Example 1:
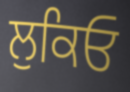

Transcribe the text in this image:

ਲੁਕਿਓ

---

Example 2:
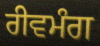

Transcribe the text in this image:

ਰੀਵਮੰਗ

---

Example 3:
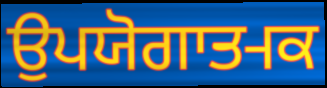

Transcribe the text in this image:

ਉਪਯੋਗਾਤ੍ਮਕ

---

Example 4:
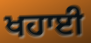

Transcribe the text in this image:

ਖਹਾਈ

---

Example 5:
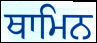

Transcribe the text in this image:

ਥਾਮਿਨ